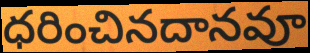
ధరించినదానవూ